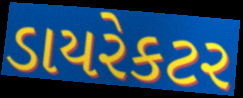
ડાયરેકટર